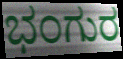
ಭಂಗುರ